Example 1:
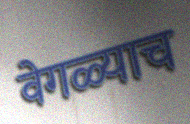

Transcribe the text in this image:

वेगळ्याच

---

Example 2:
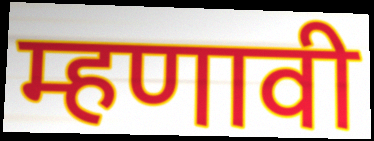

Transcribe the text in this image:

म्हणावी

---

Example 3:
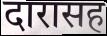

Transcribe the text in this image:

दारासह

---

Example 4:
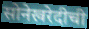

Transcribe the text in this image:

सोनेखरेदीची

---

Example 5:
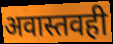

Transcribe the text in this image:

अवास्तवही